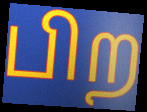
பிற